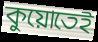
কুয়োতেই